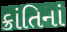
ક્રાંતિનાં